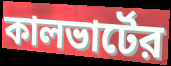
কালভার্টের